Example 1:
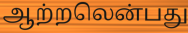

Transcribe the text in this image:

ஆற்றலென்பது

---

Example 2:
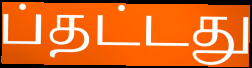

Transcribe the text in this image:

ப்தட்டது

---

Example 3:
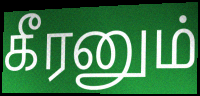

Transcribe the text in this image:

கீரனும்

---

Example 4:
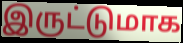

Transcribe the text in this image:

இருட்டுமாக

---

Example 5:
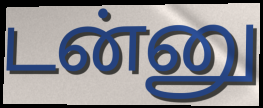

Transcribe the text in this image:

டன்னு